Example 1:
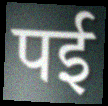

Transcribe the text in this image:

पई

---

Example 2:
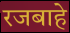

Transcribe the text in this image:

रजबाहे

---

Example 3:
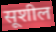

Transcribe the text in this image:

सूशील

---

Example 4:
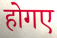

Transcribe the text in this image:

होगए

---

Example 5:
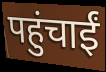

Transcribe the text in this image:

पहुंचाईं